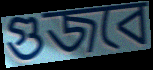
গুজবে